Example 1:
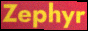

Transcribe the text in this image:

Zephyr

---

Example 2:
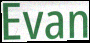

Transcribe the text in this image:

Evan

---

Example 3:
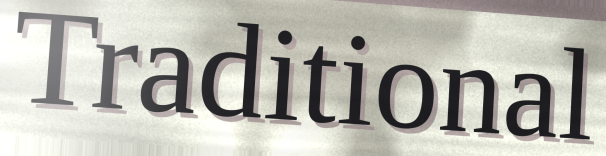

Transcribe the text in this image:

Traditional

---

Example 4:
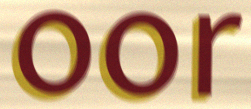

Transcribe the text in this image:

oor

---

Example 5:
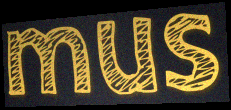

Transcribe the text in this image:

mus